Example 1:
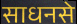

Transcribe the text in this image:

साधनसे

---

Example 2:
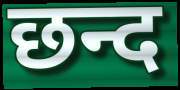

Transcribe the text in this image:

छन्द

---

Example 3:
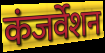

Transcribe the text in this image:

कंजर्वेशन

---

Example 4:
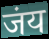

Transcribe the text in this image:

जंय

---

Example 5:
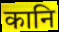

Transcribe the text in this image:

कानि